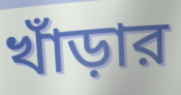
খাঁড়ার